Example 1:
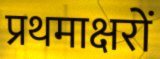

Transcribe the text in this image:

प्रथमाक्षरों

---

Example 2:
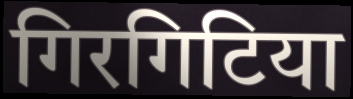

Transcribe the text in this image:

गिरगिटिया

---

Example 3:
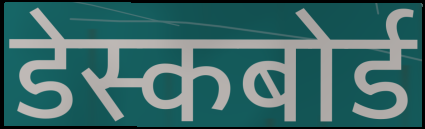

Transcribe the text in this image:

डेस्कबोर्ड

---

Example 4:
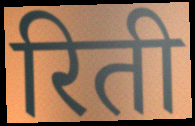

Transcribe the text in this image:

रिती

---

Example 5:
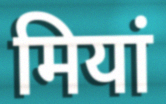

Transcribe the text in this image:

मियां